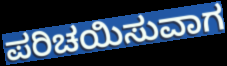
ಪರಿಚಯಿಸುವಾಗ